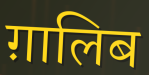
ग़ालिब